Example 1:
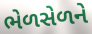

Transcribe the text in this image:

ભેળસેળને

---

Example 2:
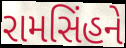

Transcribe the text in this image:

રામસિંહને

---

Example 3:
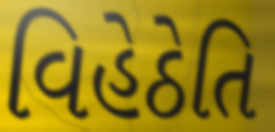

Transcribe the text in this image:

વિહેઠેતિ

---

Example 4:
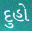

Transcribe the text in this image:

દુહો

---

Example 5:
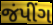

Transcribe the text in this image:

જંપીંગ